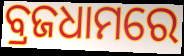
ବ୍ରଜଧାମରେ